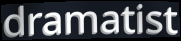
dramatist